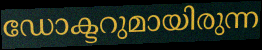
ഡോക്ടറുമായിരുന്ന